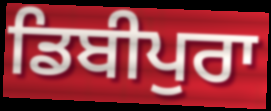
ਡਿਬੀਪੁਰਾ